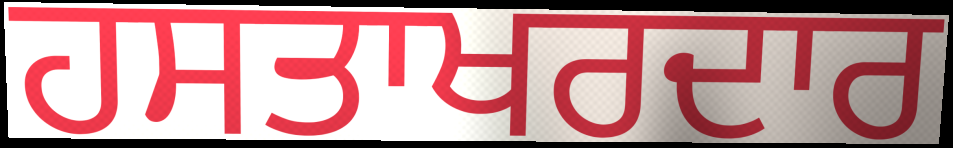
ਹਸਤਾਖਰਦਾਰ